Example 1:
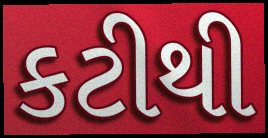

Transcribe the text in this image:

કટીથી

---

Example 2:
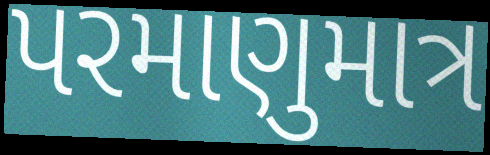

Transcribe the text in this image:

પરમાણુમાત્ર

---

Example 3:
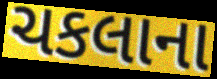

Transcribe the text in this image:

ચકલાના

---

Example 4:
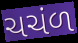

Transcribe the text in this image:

ચચંળ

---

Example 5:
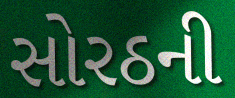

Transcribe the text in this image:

સોરઠની